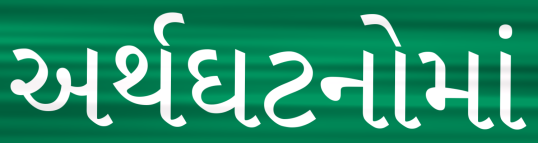
અર્થઘટનોમાં